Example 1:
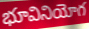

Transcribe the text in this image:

భూవినియోగ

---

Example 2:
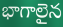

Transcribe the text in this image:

భాగాలైన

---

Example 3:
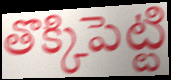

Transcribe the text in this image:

తొక్కిపెట్టి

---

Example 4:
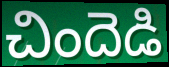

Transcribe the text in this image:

చిందెడి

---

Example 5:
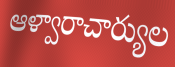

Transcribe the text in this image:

ఆళ్వారాచార్యుల